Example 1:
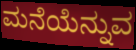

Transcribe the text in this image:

ಮನೆಯೆನ್ನುವ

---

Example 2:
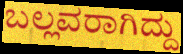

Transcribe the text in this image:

ಬಲ್ಲವರಾಗಿದ್ದು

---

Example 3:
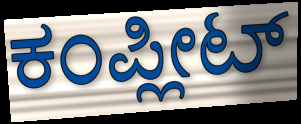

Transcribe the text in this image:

ಕಂಪ್ಲೀಟ್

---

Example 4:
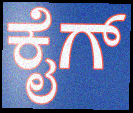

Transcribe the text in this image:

ಕೈಗ್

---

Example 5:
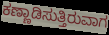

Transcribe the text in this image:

ಕಣ್ಣಾಡಿಸುತ್ತಿರುವಾಗ